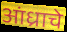
आंध्राचे